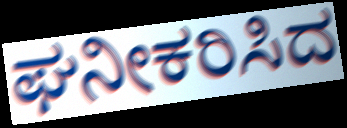
ಘನೀಕರಿಸಿದ